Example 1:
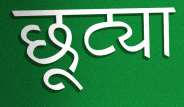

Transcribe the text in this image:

छूट्या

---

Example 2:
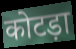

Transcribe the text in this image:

कोटड़ा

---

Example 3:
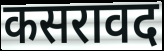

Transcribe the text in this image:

कसरावद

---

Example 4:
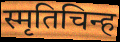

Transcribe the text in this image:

स्मृतिचिन्ह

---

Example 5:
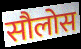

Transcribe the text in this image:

सौलोस